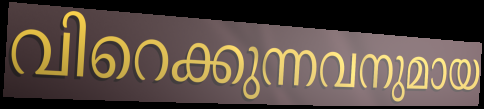
വിറെക്കുന്നവനുമായ